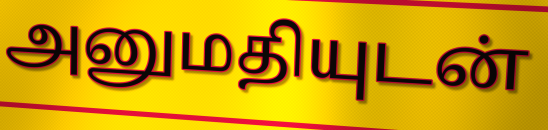
அனுமதியுடன்